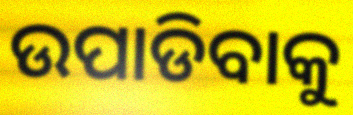
ଉପାଡିବାକୁ